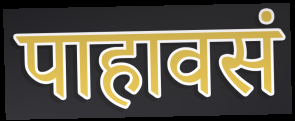
पाहावसं